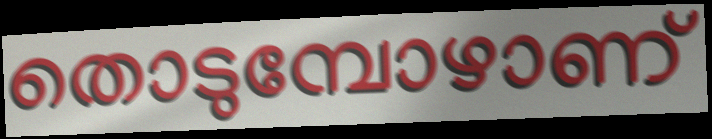
തൊടുമ്പോഴാണ്